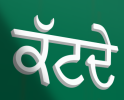
ਕੱਟਦੇ